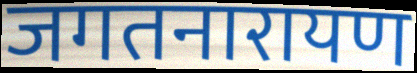
जगतनारायण